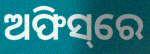
ଅଫିସ୍‌ରେ